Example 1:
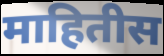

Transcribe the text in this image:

माहितीस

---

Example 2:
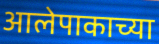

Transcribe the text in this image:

आलेपाकाच्या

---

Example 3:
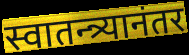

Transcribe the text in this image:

स्वातन्त्र्यानंतर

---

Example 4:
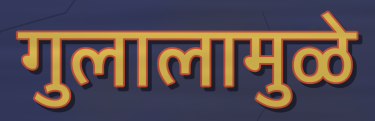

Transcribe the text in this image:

गुलालामुळे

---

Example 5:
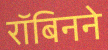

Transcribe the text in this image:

रॉबिनने